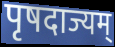
पृषदाज्यम्